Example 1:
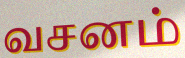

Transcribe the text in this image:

வசனம்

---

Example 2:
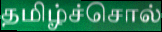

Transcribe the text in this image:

தமிழ்ச்சொல்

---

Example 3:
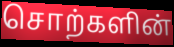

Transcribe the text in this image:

சொற்களின்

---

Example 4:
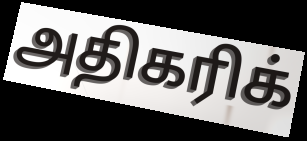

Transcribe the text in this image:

அதிகரிக்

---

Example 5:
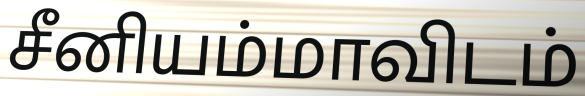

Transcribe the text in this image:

சீனியம்மாவிடம்